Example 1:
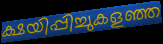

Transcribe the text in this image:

ക്ഷയിപ്പിച്ചുകളഞ്ഞ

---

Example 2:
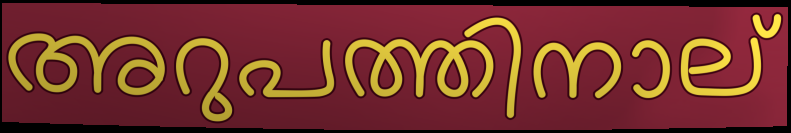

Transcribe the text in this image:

അറുപത്തിനാല്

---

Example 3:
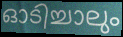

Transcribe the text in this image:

ഓടിച്ചാലും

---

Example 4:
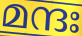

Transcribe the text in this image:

മന്ദഃ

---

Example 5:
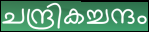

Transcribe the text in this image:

ചന്ദ്രികച്ചന്ദം